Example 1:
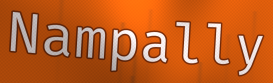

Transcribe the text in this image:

Nampally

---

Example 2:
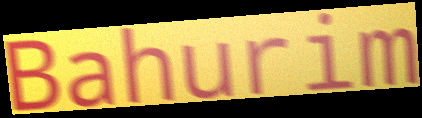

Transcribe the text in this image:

Bahurim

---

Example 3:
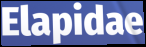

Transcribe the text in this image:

Elapidae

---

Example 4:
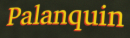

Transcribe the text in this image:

Palanquin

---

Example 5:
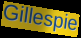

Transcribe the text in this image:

Gillespie